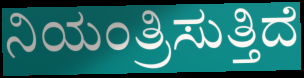
ನಿಯಂತ್ರಿಸುತ್ತಿದೆ